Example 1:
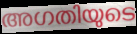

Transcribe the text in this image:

അഗതിയുടെ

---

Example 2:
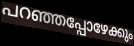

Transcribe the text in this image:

പറഞ്ഞപ്പോഴേക്കും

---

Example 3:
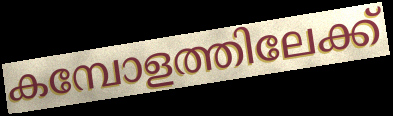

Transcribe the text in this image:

കമ്പോളത്തിലേക്ക്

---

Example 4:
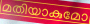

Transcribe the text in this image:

മതിയാകുമോ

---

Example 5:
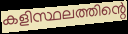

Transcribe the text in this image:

കളിസ്ഥലത്തിന്റെ